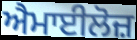
ਐਮਾਈਲੋਜ਼